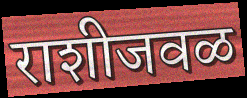
राशीजवळ